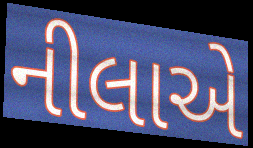
નીલાએ